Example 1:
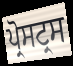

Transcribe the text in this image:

ਪ੍ਰੋਸਟ੍ਰਸ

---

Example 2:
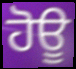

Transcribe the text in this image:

ਹੋਊ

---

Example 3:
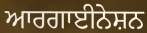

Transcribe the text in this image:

ਆਰਗਾਈਨੇਸ਼ਨ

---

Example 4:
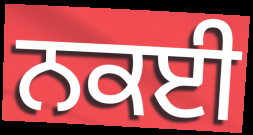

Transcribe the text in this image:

ਨਕਈ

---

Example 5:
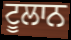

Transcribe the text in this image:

ਟੂਲਾਨ